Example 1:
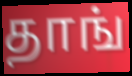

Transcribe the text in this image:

தாங்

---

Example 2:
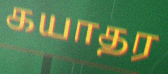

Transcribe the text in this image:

கயாதர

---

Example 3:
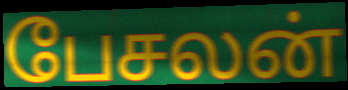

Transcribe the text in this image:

பேசலன்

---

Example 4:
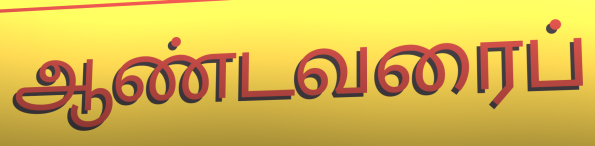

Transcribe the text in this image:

ஆண்டவரைப்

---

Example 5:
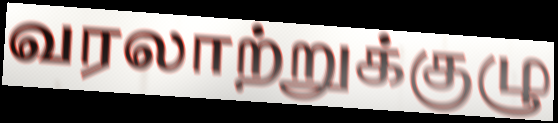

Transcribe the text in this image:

வரலாற்றுக்குழு